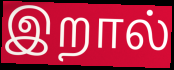
இறால்